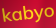
kabyo